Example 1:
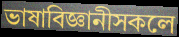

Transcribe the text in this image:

ভাষাবিজ্ঞানীসকলে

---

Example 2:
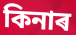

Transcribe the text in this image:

কিনাৰ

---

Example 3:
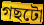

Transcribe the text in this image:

গছটো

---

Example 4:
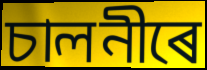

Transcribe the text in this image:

চালনীৰে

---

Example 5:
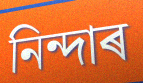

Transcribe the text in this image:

নিন্দাৰ